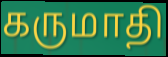
கருமாதி